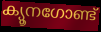
ക്യൂനഗോണ്ട്